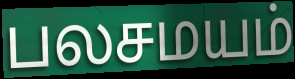
பலசமயம்